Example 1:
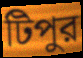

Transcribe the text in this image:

টিপুর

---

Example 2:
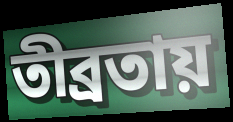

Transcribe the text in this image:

তীব্রতায়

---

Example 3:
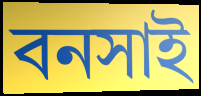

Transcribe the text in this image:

বনসাই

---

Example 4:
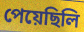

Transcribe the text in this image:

পেয়েছিলি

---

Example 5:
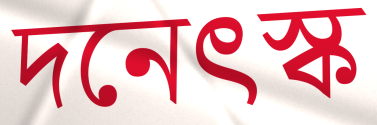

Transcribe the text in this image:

দনেৎস্ক